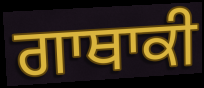
ਗਾਥਾਕੀ